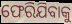
ଫେରିଯିବାକୁ